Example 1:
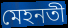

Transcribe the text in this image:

মেহনতী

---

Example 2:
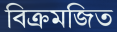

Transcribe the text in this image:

বিক্রমজিত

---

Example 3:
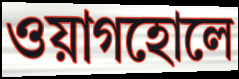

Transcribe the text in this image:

ওয়াগহোলে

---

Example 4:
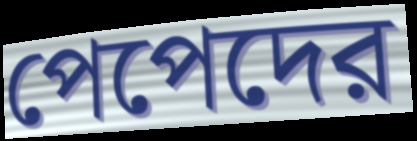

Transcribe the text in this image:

পেপেদের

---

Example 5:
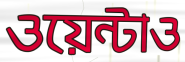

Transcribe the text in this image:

ওয়েন্টাও